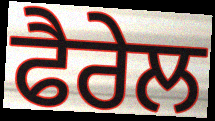
ਫੈਰੇਲ